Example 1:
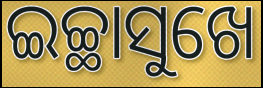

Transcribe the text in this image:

ଇଚ୍ଛାସୁଖେ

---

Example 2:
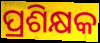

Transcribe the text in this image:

ପ୍ରଶିକ୍ଷକ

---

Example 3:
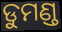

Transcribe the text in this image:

ଡୁମଣ୍ଡ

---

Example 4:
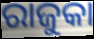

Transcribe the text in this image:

ରାଜୁକା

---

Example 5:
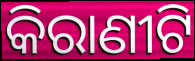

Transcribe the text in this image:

କିରାଣୀଟି